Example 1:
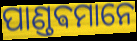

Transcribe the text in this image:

ପାଣ୍ଡଵମାନେ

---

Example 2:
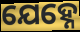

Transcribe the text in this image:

ଯେହ୍ନେ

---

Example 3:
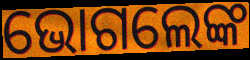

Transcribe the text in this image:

ଭୋଗଲେଙ୍କ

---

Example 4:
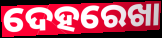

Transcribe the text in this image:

ଦେହରେଖା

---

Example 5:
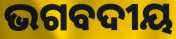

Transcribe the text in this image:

ଭଗବଦୀୟ